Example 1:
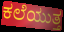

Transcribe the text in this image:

ಕಲೆಯುತ್ತ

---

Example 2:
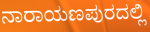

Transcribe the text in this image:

ನಾರಾಯಣಪುರದಲ್ಲಿ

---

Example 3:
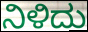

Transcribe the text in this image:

ನಿಳಿದು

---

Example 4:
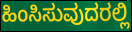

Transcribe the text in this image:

ಹಿಂಸಿಸುವುದರಲ್ಲಿ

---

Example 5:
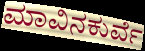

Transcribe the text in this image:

ಮಾವಿನಕುರ್ವೆ